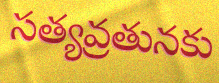
సత్యవ్రతునకు